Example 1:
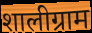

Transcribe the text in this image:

शालीग्राम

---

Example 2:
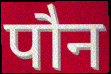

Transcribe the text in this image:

पौन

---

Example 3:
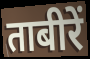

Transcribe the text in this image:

ताबीरें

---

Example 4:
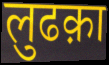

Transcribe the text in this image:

लुढक़ा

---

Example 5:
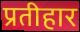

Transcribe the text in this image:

प्रतीहार